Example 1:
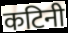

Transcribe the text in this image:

कटिनी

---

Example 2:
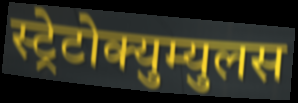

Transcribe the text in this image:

स्ट्रेटोक्युम्युलस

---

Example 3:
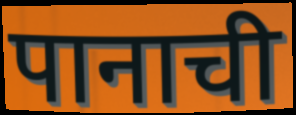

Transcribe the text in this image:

पानाची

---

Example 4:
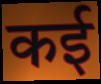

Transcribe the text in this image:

कई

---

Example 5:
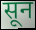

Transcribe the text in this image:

सून